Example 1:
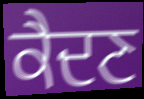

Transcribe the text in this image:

ਕੈਦਣ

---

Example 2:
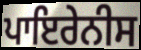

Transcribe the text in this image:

ਪਾਇਰੇਨੀਸ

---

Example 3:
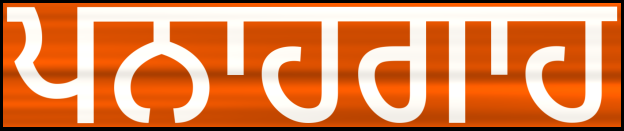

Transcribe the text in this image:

ਪਨਾਹਗਾਹ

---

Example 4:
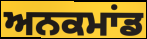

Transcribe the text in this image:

ਅਨਕਮਾਂਡ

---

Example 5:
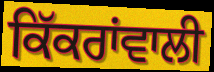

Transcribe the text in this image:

ਕਿੱਕਰਾਂਵਾਲੀ